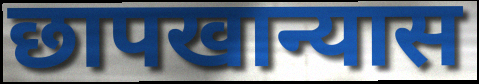
छापखान्यास